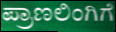
ಪ್ರಾಣಲಿಂಗಿಗೆ